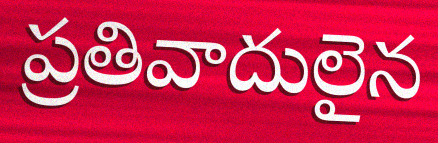
ప్రతివాదులైన